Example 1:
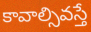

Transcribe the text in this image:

కావాల్సివస్తే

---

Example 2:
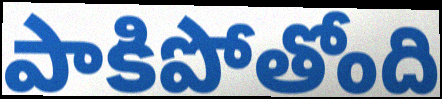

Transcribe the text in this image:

పాకిపోతోంది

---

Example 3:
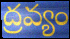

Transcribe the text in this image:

ద్రవ్యం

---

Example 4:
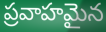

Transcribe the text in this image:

ప్రవాహమైన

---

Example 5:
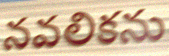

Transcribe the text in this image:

నవలికను